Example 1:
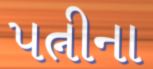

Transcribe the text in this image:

પત્નીના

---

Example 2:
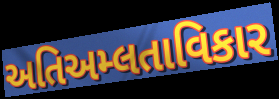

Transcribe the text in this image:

અતિઅમ્લતાવિકાર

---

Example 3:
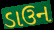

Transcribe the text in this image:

ડાઉન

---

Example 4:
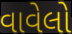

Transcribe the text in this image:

વાવેલો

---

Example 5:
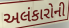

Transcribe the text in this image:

અલંકારોની